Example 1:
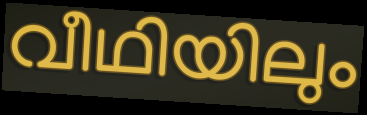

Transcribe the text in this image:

വീഥിയിലും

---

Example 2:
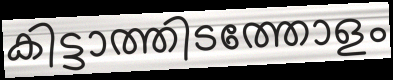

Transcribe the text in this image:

കിട്ടാത്തിടത്തോളം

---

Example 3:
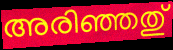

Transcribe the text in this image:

അരിഞ്ഞതു്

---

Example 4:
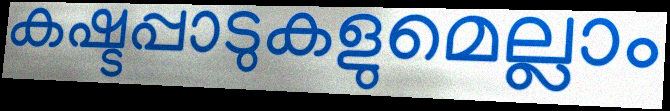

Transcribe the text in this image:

കഷ്ടപ്പാടുകളുമെല്ലാം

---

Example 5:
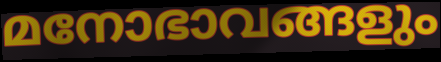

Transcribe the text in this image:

മനോഭാവങ്ങളും